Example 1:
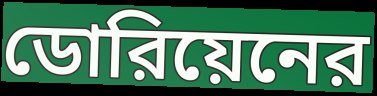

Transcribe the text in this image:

ডোরিয়েনের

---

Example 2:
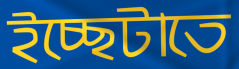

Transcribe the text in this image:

ইচ্ছেটাতে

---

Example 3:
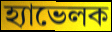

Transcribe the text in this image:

হ্যাভেলক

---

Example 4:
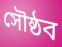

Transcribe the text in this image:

সৌষ্ঠব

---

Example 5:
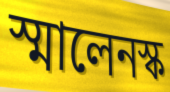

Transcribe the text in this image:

স্মালেনস্ক